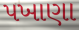
પખાણા